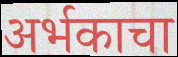
अर्भकाचा